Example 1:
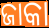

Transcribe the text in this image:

ଜାକା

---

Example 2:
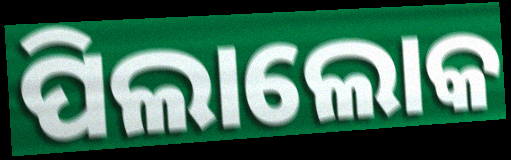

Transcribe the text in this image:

ପିଲାଲୋକ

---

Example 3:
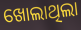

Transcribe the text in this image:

ଖୋଲାଥିଲା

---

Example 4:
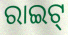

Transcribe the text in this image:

ରାଇଟ୍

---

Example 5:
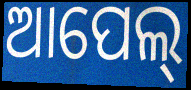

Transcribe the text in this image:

ଆପେଲ୍